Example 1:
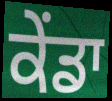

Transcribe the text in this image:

ਕੇਂਡਾ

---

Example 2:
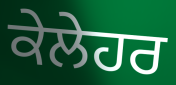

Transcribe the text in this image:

ਕੇਲੇਹਰ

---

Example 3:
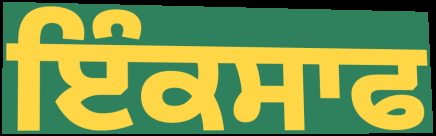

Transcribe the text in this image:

ਇੰਕਸਾਫ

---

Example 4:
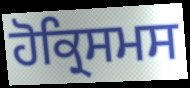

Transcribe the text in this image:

ਹੋਕ੍ਰਿਸਮਸ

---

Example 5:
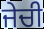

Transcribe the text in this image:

ਜੇਚੀ